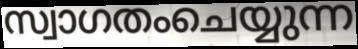
സ്വാഗതംചെയ്യുന്ന